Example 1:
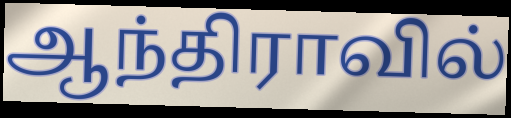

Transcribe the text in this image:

ஆந்திராவில்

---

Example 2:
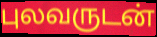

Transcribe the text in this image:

புலவருடன்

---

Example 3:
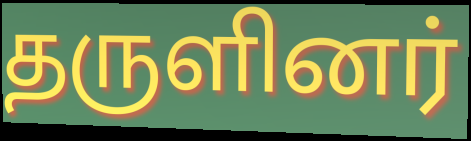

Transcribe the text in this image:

தருளினர்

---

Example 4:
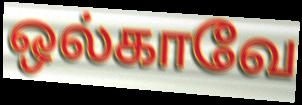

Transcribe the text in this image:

ஒல்காவே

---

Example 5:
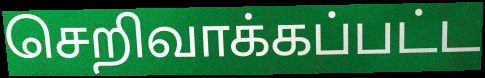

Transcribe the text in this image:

செறிவாக்கப்பட்ட